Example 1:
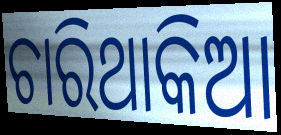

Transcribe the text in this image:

ଚାରିଥାକିଆ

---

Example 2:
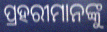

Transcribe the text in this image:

ପ୍ରହରୀମାନଙ୍କୁ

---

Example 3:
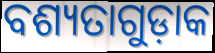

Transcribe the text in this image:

ବଶ୍ୟତାଗୁଡ଼ାକ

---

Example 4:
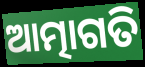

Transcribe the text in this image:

ଆତ୍ମାଗତି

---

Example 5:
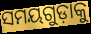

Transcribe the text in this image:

ସମୟଗୁଡ଼ାକୁ